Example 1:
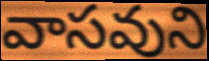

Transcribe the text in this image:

వాసవుని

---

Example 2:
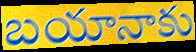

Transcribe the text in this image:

బయానాకు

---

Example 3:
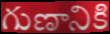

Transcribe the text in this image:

గుణానికి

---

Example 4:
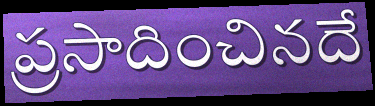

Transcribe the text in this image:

ప్రసాదించినదే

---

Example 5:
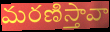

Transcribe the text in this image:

మరణిస్తావా